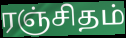
ரஞ்சிதம்